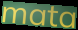
mata